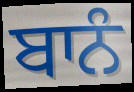
ਬਾਨੰ